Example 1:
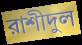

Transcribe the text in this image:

রাশীদুল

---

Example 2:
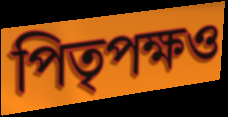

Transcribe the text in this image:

পিতৃপক্ষও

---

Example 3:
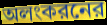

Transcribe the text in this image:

অলংকরনের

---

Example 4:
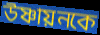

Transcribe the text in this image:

উষ্ণায়নকে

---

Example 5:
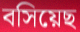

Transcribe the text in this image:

বসিয়েছ